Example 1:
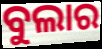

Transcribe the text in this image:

ବୁଲାର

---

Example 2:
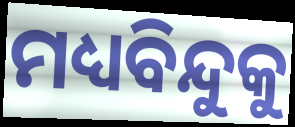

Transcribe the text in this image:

ମଧ୍ୟବିନ୍ଦୁକୁ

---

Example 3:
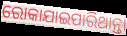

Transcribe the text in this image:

ରୋକାଯାଇପାରିଥାନ୍ତା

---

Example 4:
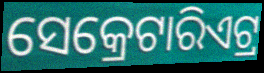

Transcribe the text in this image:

ସେକ୍ରେଟାରିଏଟ୍ର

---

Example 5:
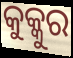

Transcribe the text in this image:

କୁକ୍କୁର